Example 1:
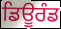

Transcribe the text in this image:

ਡਿਊਰੰਡ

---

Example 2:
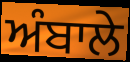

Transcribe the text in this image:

ਅੰਬਾਲੇ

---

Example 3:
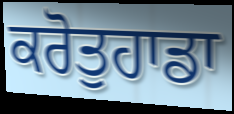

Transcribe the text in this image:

ਕਰੋਤੁਹਾਡਾ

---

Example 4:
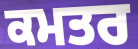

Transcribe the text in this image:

ਕਮਤਰ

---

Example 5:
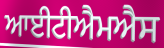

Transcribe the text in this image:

ਆਈਟੀਐਮਐਸ